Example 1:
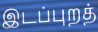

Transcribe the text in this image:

இடப்புறத்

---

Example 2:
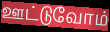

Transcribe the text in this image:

ஊட்டுவோம்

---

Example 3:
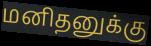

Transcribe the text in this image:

மனிதனுக்கு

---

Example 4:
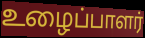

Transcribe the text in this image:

உழைப்பாளர்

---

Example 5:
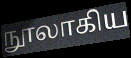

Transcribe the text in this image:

நூலாகிய